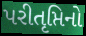
પરીતૃપ્તિનો